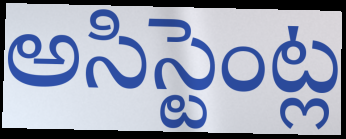
అసిస్టెంట్ల